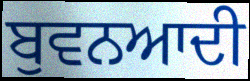
ਬੁਵਨਆਦੀ